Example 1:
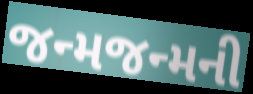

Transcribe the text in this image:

જન્મજન્મની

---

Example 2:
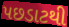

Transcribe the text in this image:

પછડાટથી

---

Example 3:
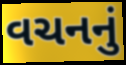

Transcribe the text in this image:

વચનનું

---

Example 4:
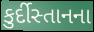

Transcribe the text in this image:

કુર્દીસ્તાનના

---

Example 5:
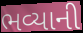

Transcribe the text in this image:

ભવ્યાની